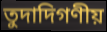
তুদাদিগণীয়